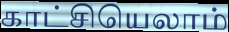
காட்சியெலாம்